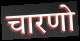
चारणो